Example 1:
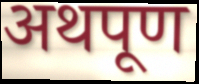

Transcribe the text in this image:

अथपूण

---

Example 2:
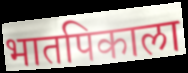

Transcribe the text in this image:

भातपिकाला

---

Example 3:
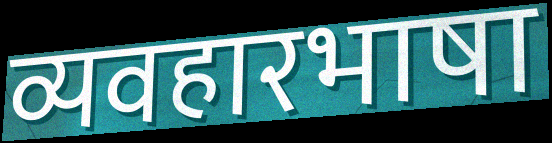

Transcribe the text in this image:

व्यवहारभाषा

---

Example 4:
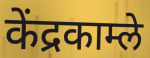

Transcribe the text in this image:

केंद्रकाम्ले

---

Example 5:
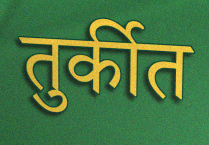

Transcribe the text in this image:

तुर्कीत